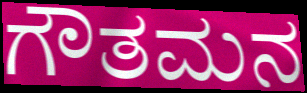
ಗೌತಮನ